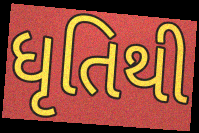
ધૃતિથી